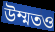
উম্মতও